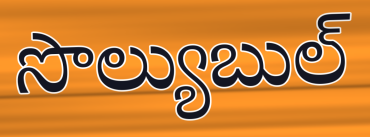
సొల్యుబుల్